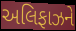
અલિફાઝને